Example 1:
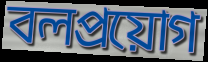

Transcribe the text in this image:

বলপ্ৰয়োগ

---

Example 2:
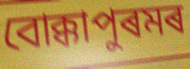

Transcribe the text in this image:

বোক্কাপুৰমৰ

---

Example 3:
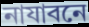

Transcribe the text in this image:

নাযাবনে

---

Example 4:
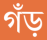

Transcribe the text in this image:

গঁড়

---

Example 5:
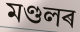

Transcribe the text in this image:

মণ্ডলৰ